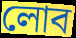
লোব